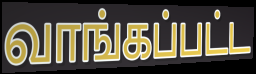
வாங்கப்பட்ட